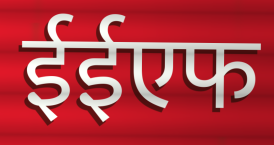
ईईएफ